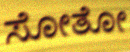
ಸೋತೋ